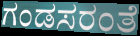
ಗಂಡಸರಂತೆ